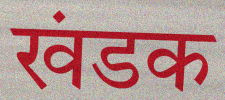
खंडक